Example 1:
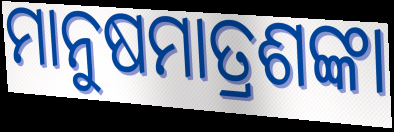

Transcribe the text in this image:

ମାନୁଷମାତ୍ରଶଙ୍କା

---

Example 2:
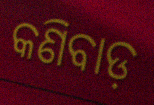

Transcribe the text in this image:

କଣିବାଡ଼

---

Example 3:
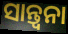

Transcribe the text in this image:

ସାନ୍ତ୍ଵନା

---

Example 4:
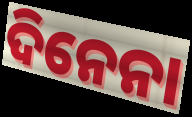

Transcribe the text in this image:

ଦିନେନା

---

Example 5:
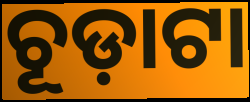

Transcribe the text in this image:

ଚୂଡ଼ାଟା